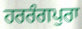
ਹਰਰੰਗਪੁਰਾ